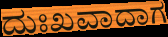
ದುಃಖವಾದಾಗ